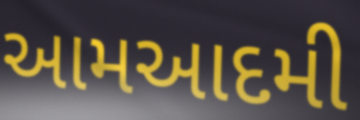
આમઆદમી